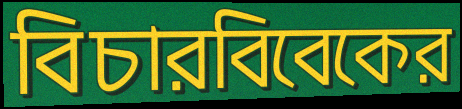
বিচারবিবেকের